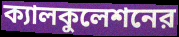
ক্যালকুলেশনের